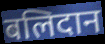
बलिदान